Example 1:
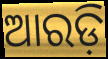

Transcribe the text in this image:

ଆରଡ଼ି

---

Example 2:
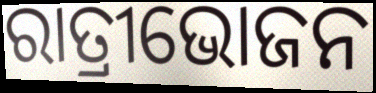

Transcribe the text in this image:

ରାତ୍ରୀଭୋଜନ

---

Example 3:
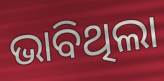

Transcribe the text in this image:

ଭାବିଥିଲା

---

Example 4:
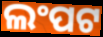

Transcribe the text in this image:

ଲଂପଟ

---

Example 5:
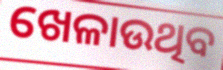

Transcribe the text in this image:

ଖେଳାଉଥିବ